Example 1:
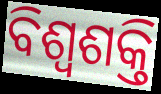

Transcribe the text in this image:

ବିଶ୍ଵଶକ୍ତି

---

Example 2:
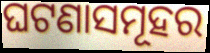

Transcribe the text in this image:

ଘଟଣାସମୂହର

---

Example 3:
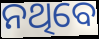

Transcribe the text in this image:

ନଥିବେ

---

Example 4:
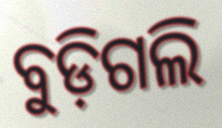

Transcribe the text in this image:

ବୁଡ଼ିଗଲି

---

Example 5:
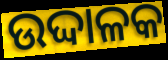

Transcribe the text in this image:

ଉଦ୍ଦାଳକ